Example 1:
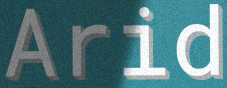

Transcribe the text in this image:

Arid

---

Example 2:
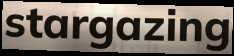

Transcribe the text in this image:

stargazing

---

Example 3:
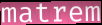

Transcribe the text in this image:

matrem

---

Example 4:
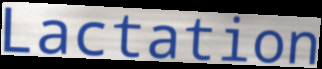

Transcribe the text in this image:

Lactation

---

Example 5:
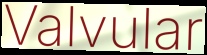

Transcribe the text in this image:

Valvular